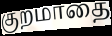
குறமாதை